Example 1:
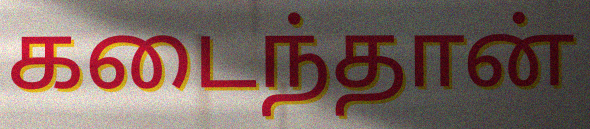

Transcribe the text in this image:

கடைந்தான்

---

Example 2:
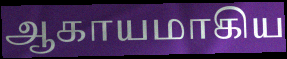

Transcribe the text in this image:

ஆகாயமாகிய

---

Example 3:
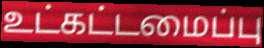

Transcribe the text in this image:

உட்கட்டமைப்பு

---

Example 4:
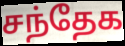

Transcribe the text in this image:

சந்தேக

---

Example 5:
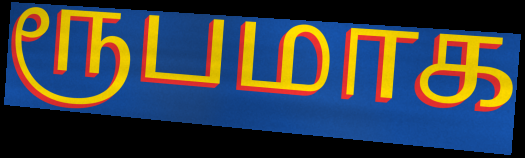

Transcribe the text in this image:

ரூபமாக